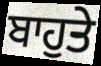
ਬਾਹੁਤੇ